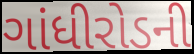
ગાંધીરોડની